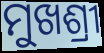
ମୁଖଶ୍ରୀ